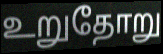
உறுதோறு